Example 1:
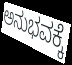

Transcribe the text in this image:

ಅನುಭವಕ್ಕೆ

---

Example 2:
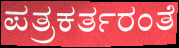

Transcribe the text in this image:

ಪತ್ರಕರ್ತರಂತೆ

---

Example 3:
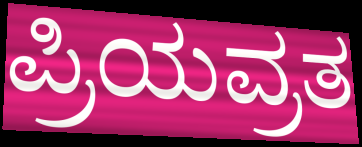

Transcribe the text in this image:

ಪ್ರಿಯವ್ರತ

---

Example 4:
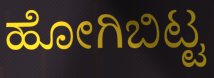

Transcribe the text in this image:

ಹೋಗಿಬಿಟ್ಟ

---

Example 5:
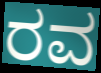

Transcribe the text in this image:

ರವ